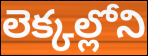
లెక్కల్లోని